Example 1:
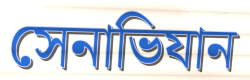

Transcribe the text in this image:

সেনাভিযান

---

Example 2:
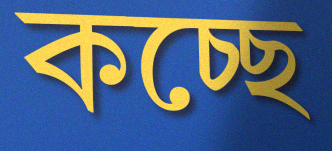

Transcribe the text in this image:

কচ্ছে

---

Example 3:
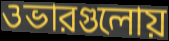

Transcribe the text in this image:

ওভারগুলোয়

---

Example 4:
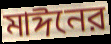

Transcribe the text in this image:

মাঈনের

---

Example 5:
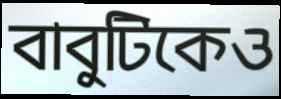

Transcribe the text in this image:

বাবুটিকেও